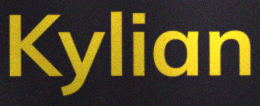
Kylian